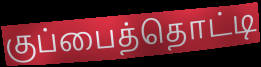
குப்பைத்தொட்டி